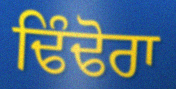
ਢਿੰਢੋਰਾ